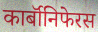
कार्बॉनिफेरस